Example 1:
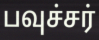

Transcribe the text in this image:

பவுச்சர்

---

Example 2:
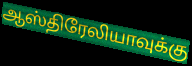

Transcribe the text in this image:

ஆஸ்திரேலியாவுக்கு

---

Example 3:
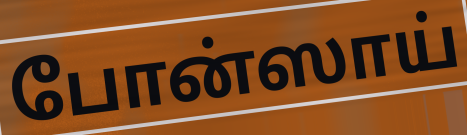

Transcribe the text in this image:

போன்ஸாய்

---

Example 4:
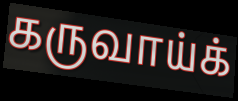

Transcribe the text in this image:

கருவாய்க்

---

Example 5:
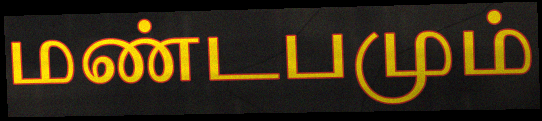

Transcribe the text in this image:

மண்டபமும்